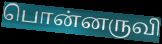
பொன்னருவி